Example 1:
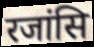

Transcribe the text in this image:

रजांसि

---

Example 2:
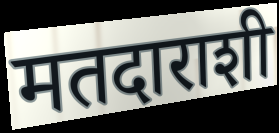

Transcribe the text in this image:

मतदाराशी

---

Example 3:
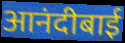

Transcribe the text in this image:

आनंदीबाई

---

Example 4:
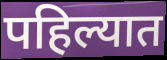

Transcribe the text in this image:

पहिल्यात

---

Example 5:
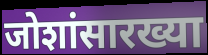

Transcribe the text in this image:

जोशांसारख्या